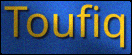
Toufiq